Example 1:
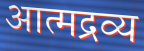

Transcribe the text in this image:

आत्मद्रव्य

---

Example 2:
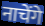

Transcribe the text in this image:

नाचेंगे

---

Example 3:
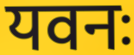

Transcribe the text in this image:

यवनः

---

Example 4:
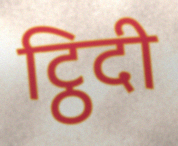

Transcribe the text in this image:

ट्ठिदी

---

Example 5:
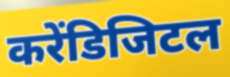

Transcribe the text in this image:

करेंडिजिटल